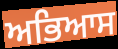
ਅਭਿਆਸ